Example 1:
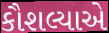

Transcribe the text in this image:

કૌશલ્યાએ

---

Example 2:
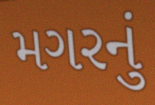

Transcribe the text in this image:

મગરનું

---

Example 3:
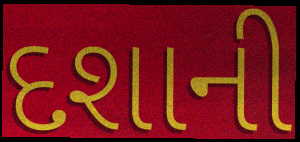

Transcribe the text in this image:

દશાની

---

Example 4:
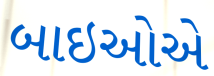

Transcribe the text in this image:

બાઇઓએ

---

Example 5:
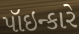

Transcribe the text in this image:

પૉઇન્કારે